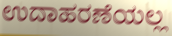
ಉದಾಹರಣೆಯಲ್ಲ